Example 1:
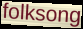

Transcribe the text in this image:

folksong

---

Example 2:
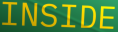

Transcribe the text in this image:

INSIDE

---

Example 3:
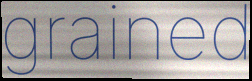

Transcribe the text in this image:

grained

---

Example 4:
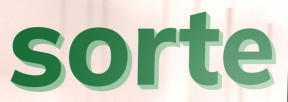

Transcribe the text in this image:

sorte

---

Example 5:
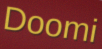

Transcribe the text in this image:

Doomi